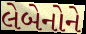
લેબેનોને